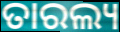
ତାରଲ୍ୟ